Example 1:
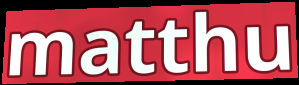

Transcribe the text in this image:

matthu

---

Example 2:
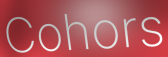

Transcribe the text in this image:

Cohors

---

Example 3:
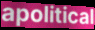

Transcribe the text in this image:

apolitical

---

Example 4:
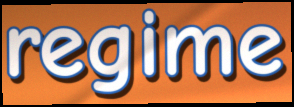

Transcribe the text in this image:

regime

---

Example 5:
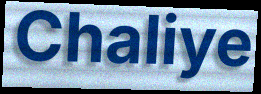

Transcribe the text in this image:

Chaliye